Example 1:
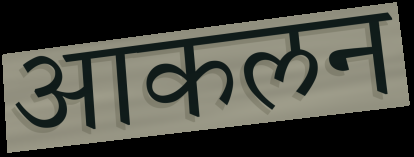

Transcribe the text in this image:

आकलन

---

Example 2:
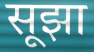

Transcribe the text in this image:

सूझा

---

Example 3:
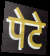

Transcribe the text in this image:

पेटे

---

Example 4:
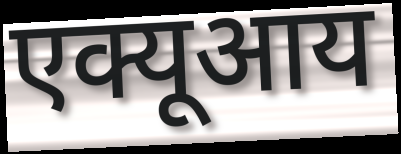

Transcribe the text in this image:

एक्यूआय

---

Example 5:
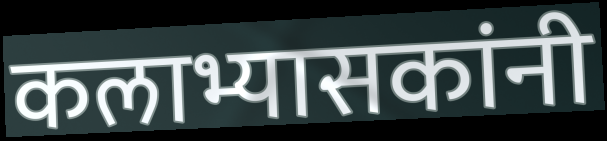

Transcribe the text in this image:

कलाभ्यासकांनी